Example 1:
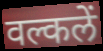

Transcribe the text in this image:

वल्कलें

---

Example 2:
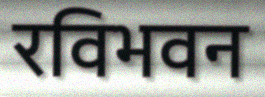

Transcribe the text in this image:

रविभवन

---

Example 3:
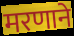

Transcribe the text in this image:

मरणाने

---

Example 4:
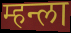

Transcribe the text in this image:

म्हन्ला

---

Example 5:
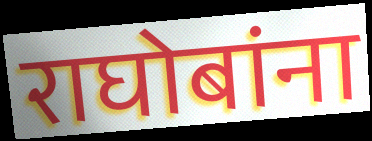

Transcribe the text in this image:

राघोबांना